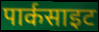
पार्कसाइट